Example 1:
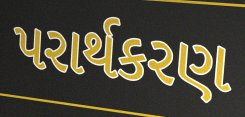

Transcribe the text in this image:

પરાર્થકરણ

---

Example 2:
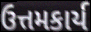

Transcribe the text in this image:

ઉત્તમકાર્ય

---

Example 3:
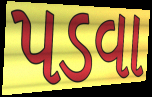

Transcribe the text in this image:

પડવા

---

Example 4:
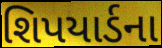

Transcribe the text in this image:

શિપયાર્ડના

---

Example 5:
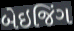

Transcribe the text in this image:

બેઇજિંગ